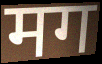
मग